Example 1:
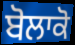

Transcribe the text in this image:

ਬੋਲਾਕੋ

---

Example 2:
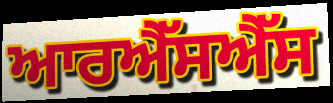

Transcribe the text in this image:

ਆਰਐੱਸਐੱਸ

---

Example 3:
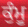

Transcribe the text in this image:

ਕੁੰਮੂ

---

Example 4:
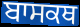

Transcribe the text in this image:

ਬਾਸਕਥ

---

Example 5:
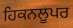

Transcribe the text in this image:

ਹਿਕਨਲੂਪਰ